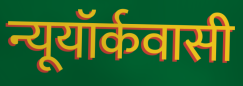
न्यूयॉर्कवासी